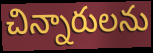
చిన్నారులను